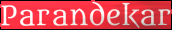
Parandekar